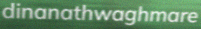
dinanathwaghmare